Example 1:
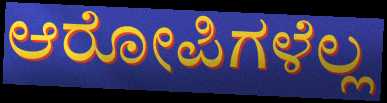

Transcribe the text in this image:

ಆರೋಪಿಗಳೆಲ್ಲ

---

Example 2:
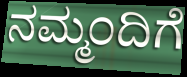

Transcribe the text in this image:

ನಮ್ಮಂದಿಗೆ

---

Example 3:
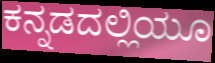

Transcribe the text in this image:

ಕನ್ನಡದಲ್ಲಿಯೂ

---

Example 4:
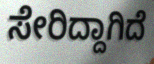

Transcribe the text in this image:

ಸೇರಿದ್ದಾಗಿದೆ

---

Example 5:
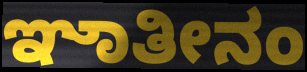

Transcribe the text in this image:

ಞಾತೀನಂ